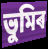
ভুমিৰ